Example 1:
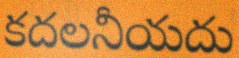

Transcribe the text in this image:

కదలనీయదు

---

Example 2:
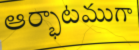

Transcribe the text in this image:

ఆర్భాటముగా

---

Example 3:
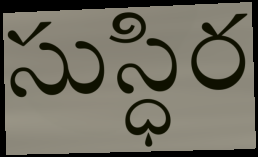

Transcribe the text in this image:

సుస్ధిర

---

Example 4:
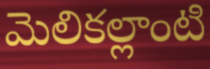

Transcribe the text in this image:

మెలికల్లాంటి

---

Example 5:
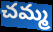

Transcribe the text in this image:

చమ్మ